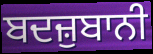
ਬਦਜ਼ੁਬਾਨੀ